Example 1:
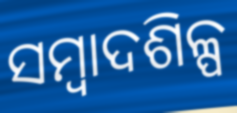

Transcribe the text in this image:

ସମ୍ୱାଦଶିଳ୍ପ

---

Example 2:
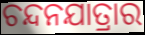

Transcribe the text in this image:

ଚନ୍ଦନଯାତ୍ରାର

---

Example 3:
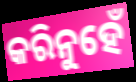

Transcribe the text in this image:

କରିନୁହେଁ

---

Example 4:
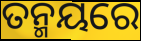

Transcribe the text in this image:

ତନ୍ମୟରେ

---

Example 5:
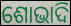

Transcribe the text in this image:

ଶୋଭାଦି